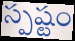
స్పష్టం